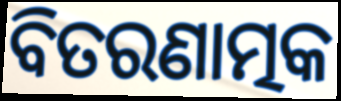
ବିତରଣାତ୍ମକ